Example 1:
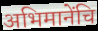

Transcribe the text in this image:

अभिमानेंचि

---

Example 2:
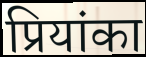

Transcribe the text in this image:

प्रियांका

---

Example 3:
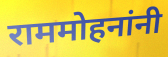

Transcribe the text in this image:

राममोहनांनी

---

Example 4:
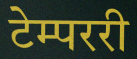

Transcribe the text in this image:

टेम्पररी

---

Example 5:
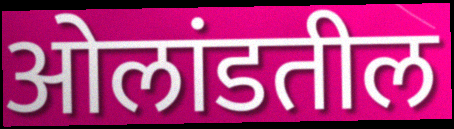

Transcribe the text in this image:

ओलांडतील